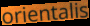
orientalis